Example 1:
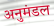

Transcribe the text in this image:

अनुमंडल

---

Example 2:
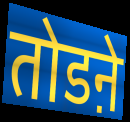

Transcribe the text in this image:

तोडऩे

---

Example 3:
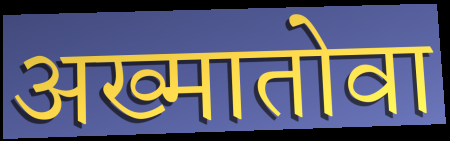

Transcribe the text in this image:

अख्मातोवा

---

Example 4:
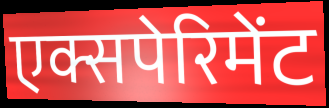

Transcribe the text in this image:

एक्सपेरिमेंट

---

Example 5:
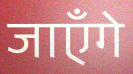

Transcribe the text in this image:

जाएँगे